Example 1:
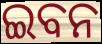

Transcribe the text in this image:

ଇବନ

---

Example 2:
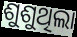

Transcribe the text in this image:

ଶୁଶୁଥିଲା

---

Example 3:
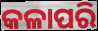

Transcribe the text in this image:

କଳାପରି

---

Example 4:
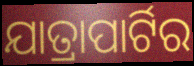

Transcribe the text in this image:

ଯାତ୍ରାପାର୍ଟିର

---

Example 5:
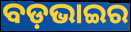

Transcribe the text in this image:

ବଡ଼ଭାଇର